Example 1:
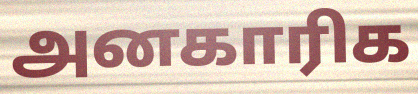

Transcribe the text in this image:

அனகாரிக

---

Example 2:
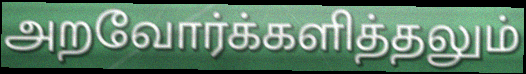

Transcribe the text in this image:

அறவோர்க்களித்தலும்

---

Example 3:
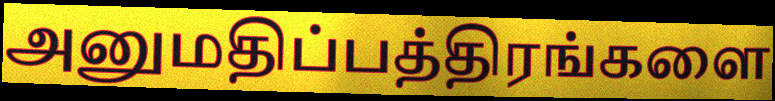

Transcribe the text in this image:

அனுமதிப்பத்திரங்களை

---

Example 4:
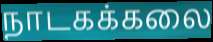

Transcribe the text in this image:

நாடகக்கலை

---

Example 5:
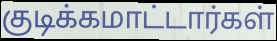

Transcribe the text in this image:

குடிக்கமாட்டார்கள்